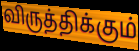
விருத்திக்கும்